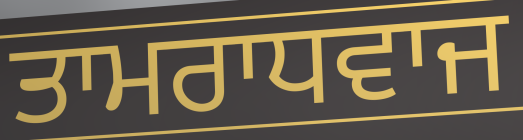
ਤਾਮਰਾਧਵਾਜ